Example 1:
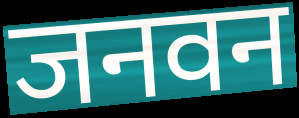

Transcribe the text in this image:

जनवन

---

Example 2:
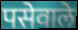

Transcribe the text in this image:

पसेवाले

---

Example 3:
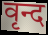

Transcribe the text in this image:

वृन्द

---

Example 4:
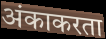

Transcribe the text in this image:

अंकाकरता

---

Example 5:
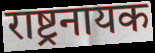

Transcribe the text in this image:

राष्ट्रनायक